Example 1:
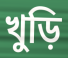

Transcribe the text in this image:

খুড়ি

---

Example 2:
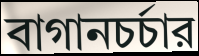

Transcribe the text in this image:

বাগানচর্চার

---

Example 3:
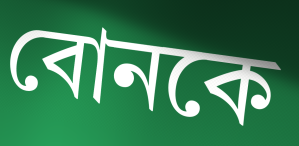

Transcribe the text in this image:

বোনকে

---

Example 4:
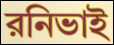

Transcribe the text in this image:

রনিভাই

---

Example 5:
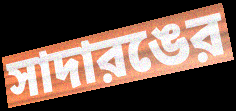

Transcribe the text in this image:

সাদারঙের